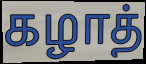
கழாத்